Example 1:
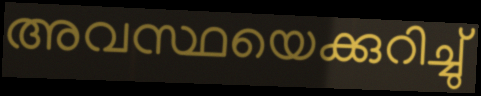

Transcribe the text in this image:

അവസ്ഥയെക്കുറിച്ചു്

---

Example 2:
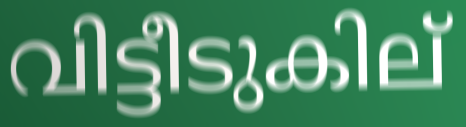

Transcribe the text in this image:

വിട്ടീടുകില്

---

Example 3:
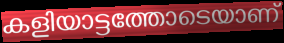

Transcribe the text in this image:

കളിയാട്ടത്തോടെയാണ്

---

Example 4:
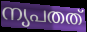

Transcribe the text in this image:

ന്യപതത്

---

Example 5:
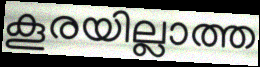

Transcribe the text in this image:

കൂരയില്ലാത്ത